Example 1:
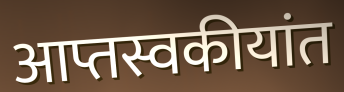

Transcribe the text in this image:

आप्तस्वकीयांत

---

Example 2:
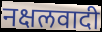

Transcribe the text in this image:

नक्षलवादी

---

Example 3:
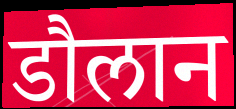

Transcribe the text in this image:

डौलान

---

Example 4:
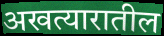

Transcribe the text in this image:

अखत्यारातील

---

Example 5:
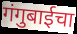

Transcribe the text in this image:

गंगुबाईचा